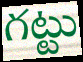
గట్టు